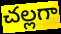
చల్లగా